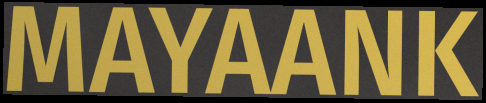
MAYAANK